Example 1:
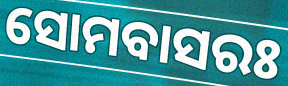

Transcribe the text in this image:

ସୋମବାସରଃ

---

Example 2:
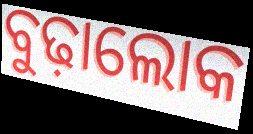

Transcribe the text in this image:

ବୁଢ଼ାଲୋକ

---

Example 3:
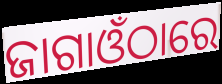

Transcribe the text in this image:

ଜାଗାଓଁଠାରେ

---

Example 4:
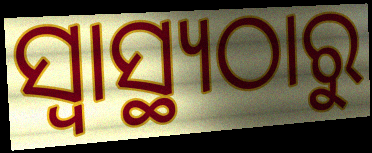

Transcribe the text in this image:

ସ୍ବାସ୍ଥ୍ୟଠାରୁ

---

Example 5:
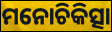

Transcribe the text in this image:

ମନୋଚିକିତ୍ସା